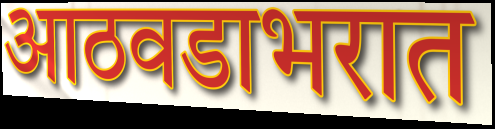
आठवडाभरात